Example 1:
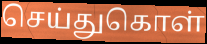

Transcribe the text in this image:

செய்துகொள்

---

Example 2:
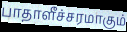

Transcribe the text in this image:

பாதாளீச்சரமாகும்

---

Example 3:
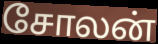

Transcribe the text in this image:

சோலன்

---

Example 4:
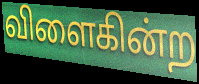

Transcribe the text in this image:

விளைகின்ற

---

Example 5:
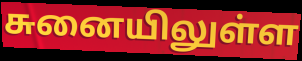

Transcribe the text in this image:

சுனையிலுள்ள